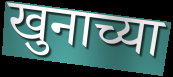
खुनाच्या